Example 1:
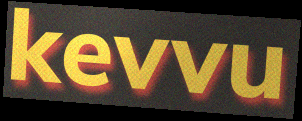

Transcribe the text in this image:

kevvu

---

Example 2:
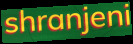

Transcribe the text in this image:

shranjeni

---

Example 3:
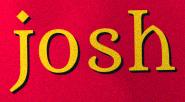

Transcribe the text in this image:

josh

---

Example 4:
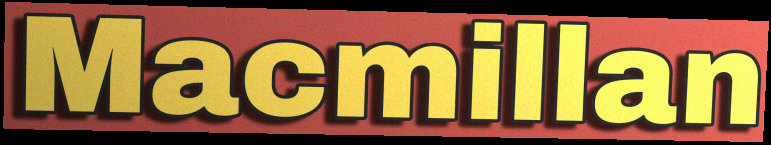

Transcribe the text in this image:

Macmillan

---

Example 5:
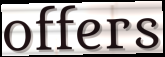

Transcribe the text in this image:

offers